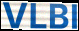
VLBI